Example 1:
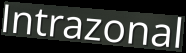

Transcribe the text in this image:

Intrazonal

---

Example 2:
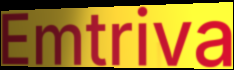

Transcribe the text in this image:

Emtriva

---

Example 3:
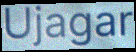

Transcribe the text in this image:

Ujagar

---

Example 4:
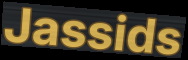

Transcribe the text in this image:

Jassids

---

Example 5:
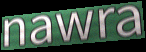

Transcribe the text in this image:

nawra